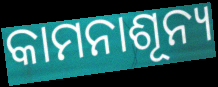
କାମନାଶୂନ୍ୟ